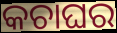
କଚାଘର